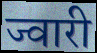
ज्वारी